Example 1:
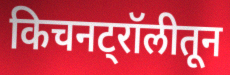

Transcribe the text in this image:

किचनट्रॉलीतून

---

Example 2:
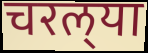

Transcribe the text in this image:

चरल्या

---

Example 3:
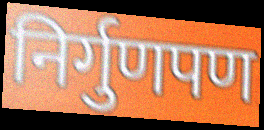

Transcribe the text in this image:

निर्गुणपण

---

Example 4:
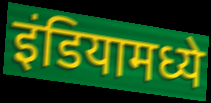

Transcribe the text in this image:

इंडियामध्ये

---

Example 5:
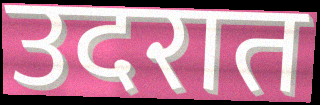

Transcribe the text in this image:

उदरात